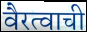
वैरत्वाची